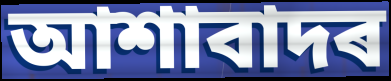
আশাবাদৰ